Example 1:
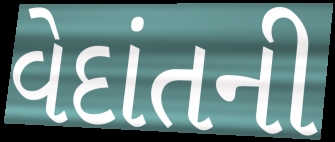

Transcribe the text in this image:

વેદાંતની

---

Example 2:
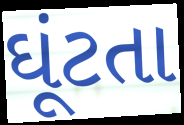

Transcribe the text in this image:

ઘૂંટતા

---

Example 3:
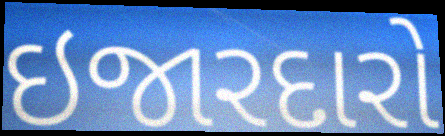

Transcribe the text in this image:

ઇજારદારો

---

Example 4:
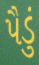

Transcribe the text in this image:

પૈડું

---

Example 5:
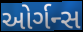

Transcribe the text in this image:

ઓર્ગન્સ